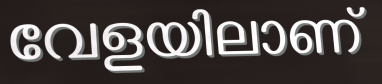
വേളയിലാണ്